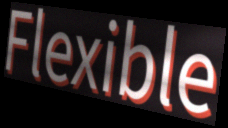
Flexible